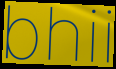
bhii